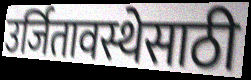
उर्जितावस्थेसाठी